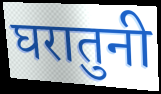
घरातुनी